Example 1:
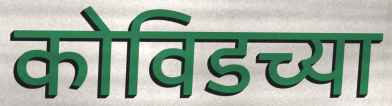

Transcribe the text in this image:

कोविडच्या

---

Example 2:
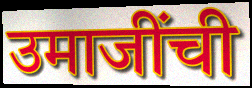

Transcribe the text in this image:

उमाजींची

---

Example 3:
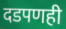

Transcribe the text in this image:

दडपणही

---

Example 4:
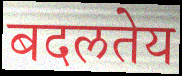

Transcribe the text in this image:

बदलतेय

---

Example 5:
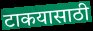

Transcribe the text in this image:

टाकयासाठी